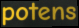
potens